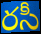
రసీ